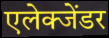
एलेक्‍जेंडर